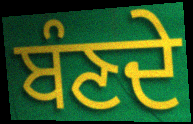
ਬੰਣਦੇ